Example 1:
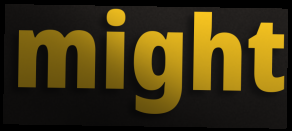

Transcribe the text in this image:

might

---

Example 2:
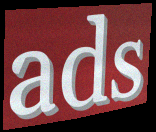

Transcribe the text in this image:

ads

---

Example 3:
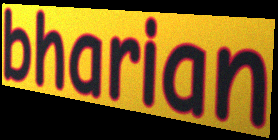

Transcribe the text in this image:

bharian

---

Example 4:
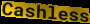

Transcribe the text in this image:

Cashless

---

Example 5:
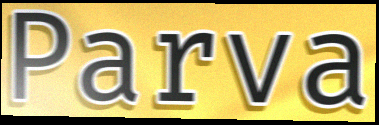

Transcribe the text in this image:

Parva